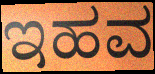
ಇಹವ